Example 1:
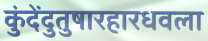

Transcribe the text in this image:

कुंदेंदुतुषारहारधवला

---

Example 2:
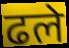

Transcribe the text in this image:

ढले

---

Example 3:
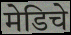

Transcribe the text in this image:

मेडिचे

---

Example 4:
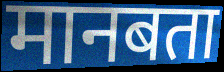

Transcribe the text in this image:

मानबता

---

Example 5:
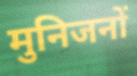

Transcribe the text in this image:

मुनिजनों